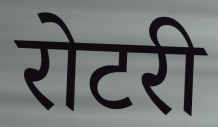
रोटरी